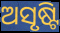
ଅସୃଷ୍ଟି